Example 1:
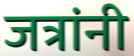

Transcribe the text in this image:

जत्रांनी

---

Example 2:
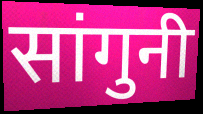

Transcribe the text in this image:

सांगुनी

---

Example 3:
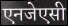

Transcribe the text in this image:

एनजेएसी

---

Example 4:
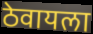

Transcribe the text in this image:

ठेवायला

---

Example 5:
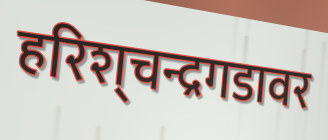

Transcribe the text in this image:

हरिश्चन्द्रगडावर